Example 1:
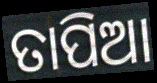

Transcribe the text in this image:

ତାପିଆ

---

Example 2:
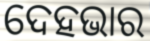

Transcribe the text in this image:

ଦେହଭାର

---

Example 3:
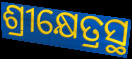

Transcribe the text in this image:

ଶ୍ରୀକ୍ଷେତ୍ରସ୍ଥ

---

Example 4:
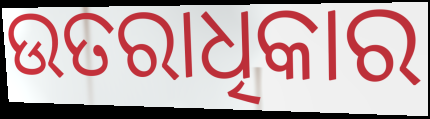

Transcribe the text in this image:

ଉତରାଧିକାର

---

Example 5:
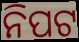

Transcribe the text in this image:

ନିପଟ